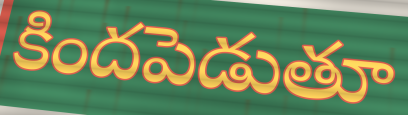
కిందపెడుతూ